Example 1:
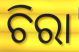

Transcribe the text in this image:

ଚିରା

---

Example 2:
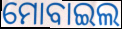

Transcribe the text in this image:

ମୋବାଇଲ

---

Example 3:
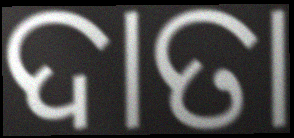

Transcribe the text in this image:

ଦାତା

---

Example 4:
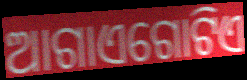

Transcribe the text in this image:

ଆଗାଏଗୋଟିଏ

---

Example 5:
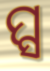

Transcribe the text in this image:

ପ୍ସ